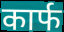
कार्फ